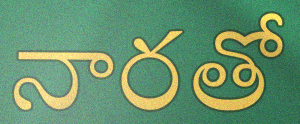
నారతో